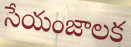
సేయంజాలక